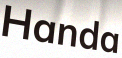
Handa